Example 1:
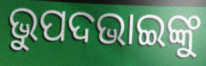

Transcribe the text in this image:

ଭୁପଦଭାଇଙ୍କୁ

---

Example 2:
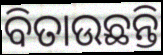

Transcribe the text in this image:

ବିତାଉଛନ୍ତି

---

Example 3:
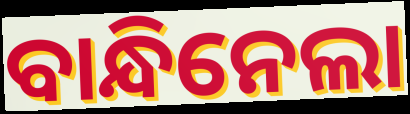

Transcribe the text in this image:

ବାନ୍ଧିନେଲା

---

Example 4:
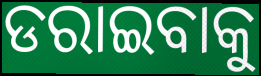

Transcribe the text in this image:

ଡରାଇବାକୁ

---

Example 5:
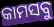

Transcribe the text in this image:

କାମସବୁ